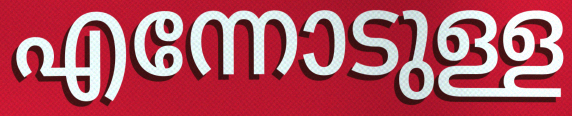
എന്നോടുള്ള